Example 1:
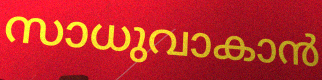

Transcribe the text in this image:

സാധുവാകാൻ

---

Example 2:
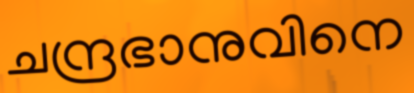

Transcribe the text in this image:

ചന്ദ്രഭാനുവിനെ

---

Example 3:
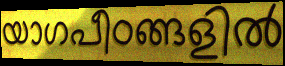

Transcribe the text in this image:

യാഗപീഠങ്ങളിൽ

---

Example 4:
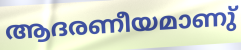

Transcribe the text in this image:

ആദരണീയമാണു്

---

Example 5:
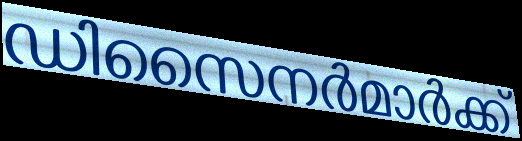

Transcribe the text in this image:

ഡിസൈനർമാർക്ക്